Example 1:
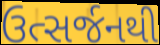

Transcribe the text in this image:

ઉત્સર્જનથી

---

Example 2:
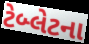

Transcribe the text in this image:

ટેબ્લેટના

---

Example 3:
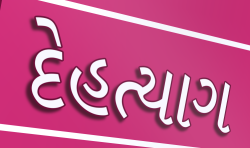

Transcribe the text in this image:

દેહત્યાગ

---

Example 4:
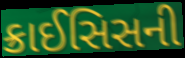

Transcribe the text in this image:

ક્રાઈસિસની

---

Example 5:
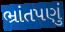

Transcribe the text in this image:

ભ્રાંતપણું